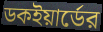
ডকইয়ার্ডের